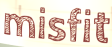
misfit